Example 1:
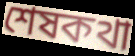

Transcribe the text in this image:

শেষকথা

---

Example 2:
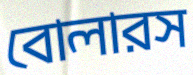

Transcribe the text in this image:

বোলারস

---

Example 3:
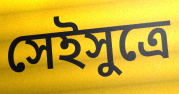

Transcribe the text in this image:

সেইসুত্রে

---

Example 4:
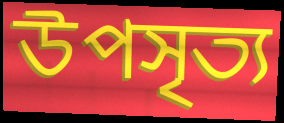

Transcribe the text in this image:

উপসৃত্য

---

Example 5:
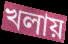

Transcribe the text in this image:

খলায়